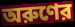
অরুণের